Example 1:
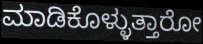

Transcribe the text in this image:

ಮಾಡಿಕೊಳ್ಳುತ್ತಾರೋ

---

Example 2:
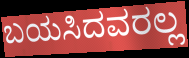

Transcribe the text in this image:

ಬಯಸಿದವರಲ್ಲ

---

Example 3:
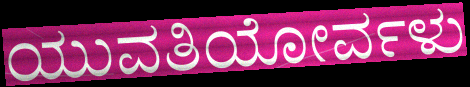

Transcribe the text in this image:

ಯುವತಿಯೋರ್ವಳು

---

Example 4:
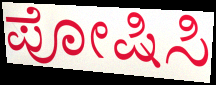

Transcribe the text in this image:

ಪೋಷಿಸಿ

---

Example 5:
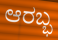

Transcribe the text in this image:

ಆರಬ್ಭ